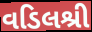
વડિલશ્રી